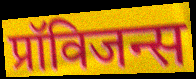
प्रॉविजन्स